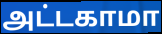
அட்டகாமா